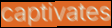
captivates